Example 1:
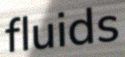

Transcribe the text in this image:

fluids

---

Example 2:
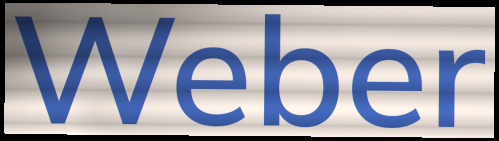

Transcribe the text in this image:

Weber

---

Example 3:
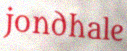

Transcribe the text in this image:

jondhale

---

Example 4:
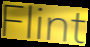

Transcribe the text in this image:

Flint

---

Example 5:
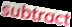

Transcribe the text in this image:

subtract